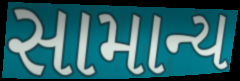
સામાન્ય